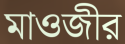
মাওজীর